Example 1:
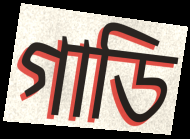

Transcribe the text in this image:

গাডি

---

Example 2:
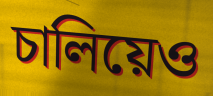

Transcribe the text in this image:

চালিয়েও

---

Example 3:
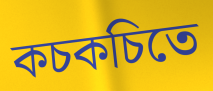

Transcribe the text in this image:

কচকচিতে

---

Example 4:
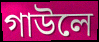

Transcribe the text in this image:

গাউলে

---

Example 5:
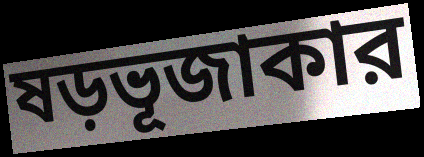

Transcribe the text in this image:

ষড়ভূজাকার